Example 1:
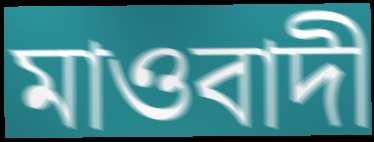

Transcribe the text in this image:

মাওবাদী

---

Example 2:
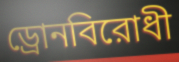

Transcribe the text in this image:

ড্রোনবিরোধী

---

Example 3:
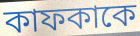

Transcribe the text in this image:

কাফকাকে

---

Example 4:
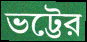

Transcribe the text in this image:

ভট্টের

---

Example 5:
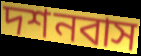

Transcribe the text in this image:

দশনবাস